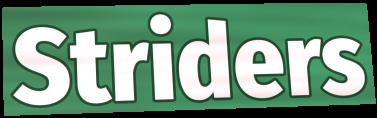
Striders